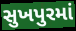
સુખપુરમાં